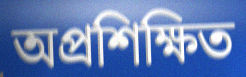
অপ্রশিক্ষিত